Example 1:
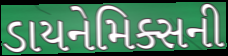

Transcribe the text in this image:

ડાયનેમિક્સની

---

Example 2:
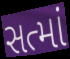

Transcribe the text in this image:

સત્માં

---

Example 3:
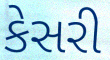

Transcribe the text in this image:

કેસરી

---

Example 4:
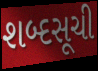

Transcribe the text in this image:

શબ્દસૂચી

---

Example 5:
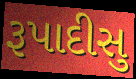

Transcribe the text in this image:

રૂપાદીસુ